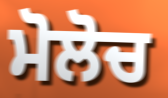
ਮੋਲੋਚ